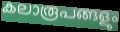
കലാരൂപങ്ങളും